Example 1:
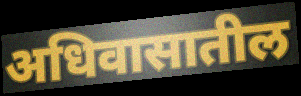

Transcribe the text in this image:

अधिवासातील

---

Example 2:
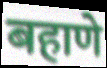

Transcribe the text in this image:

बहाणे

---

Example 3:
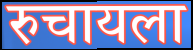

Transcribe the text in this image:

रुचायला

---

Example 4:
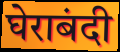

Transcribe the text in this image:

घेराबंदी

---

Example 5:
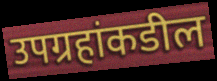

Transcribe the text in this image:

उपग्रहांकडील